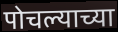
पोचल्याच्या